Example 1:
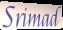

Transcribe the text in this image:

Srimad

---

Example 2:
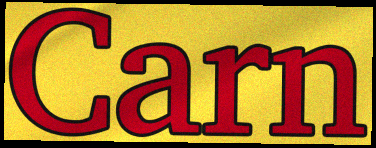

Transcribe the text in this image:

Carn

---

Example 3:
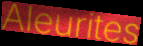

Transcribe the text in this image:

Aleurites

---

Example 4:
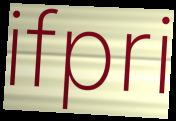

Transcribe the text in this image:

ifpri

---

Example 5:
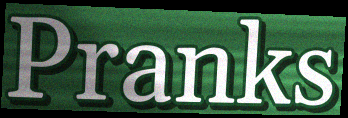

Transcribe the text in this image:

Pranks